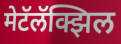
मेटॅलॅक्झिल